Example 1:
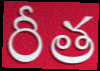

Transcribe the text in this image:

రీత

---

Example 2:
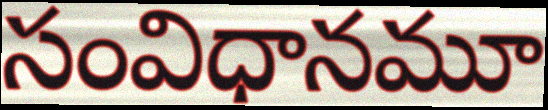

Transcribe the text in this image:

సంవిధానమూ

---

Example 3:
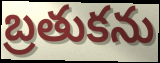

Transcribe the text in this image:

బ్రతుకను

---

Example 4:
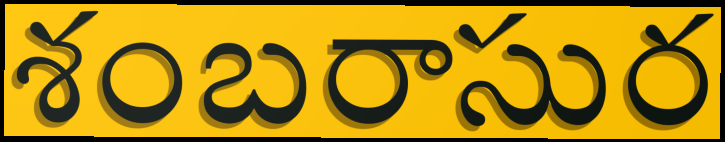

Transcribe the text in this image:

శంబరాసుర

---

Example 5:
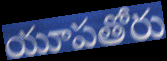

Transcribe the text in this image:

యూపతోరు